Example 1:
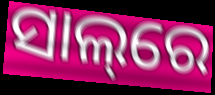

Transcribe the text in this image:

ସାଲ୍‌ରେ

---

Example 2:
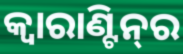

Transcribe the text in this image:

କ୍ବାରାଣ୍ଟିନ୍‌ର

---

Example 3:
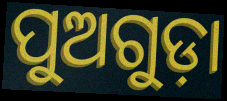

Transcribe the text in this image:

ପୁଅଗୁଡ଼ା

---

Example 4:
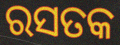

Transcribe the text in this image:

ରସତକ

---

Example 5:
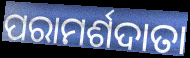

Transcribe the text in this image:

ପରାମର୍ଶଦାତା